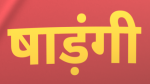
षाड़ंगी